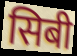
सिबी